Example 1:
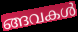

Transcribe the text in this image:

ങ്ങവകൾ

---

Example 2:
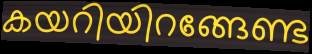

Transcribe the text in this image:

കയറിയിറങ്ങേണ്ട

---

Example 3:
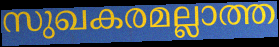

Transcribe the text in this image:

സുഖകരമല്ലാത്ത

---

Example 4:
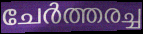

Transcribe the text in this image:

ചേർത്തരച്ച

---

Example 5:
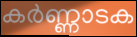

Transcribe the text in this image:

കർണ്ണാടക